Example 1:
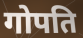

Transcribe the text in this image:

गोपति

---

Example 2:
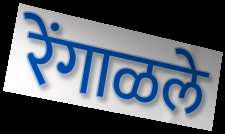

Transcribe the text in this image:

रेंगाळले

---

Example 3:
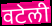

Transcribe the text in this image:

वटेली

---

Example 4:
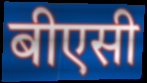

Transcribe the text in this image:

बीएसी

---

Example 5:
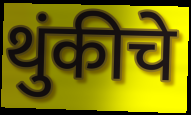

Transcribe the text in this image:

थुंकीचे